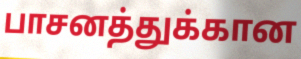
பாசனத்துக்கான